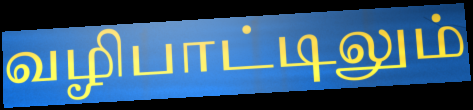
வழிபாட்டிலும்